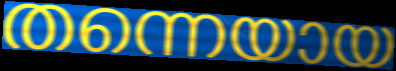
തന്നെയായ